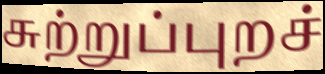
சுற்றுப்புறச்